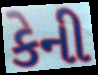
કેની